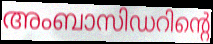
അംബാസിഡറിന്റെ